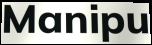
Manipu